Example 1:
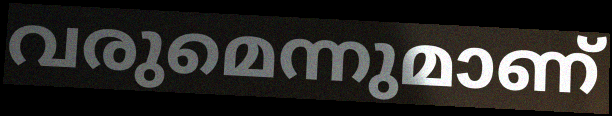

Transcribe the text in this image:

വരുമെന്നുമാണ്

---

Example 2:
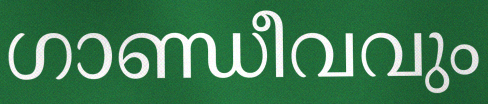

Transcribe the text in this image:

ഗാണ്ഡീവവും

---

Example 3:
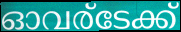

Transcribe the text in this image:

ഓവര്ടേക്ക്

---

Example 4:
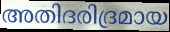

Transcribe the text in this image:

അതിദരിദ്രമായ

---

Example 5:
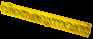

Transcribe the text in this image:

വിതെക്കുന്നവൻ